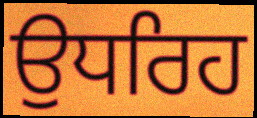
ਉਧਰਿਹ